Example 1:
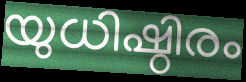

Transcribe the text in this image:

യുധിഷ്ഠിരം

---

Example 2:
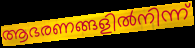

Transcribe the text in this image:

ആഭരണങ്ങളിൽനിന്ന്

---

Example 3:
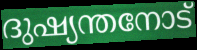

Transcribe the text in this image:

ദുഷ്യന്തനോട്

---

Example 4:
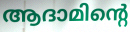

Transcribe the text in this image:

ആദാമിന്റെ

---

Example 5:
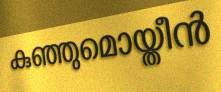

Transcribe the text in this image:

കുഞ്ഞുമൊയ്തീൻ